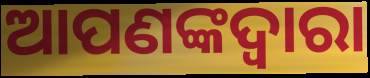
ଆପଣଙ୍କଦ୍ବାରା